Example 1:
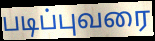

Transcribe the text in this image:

படிப்புவரை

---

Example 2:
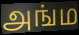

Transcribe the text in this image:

அங்ம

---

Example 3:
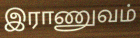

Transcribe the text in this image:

இராணுவம்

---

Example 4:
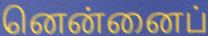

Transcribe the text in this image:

னென்னைப்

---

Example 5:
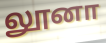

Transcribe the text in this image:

லூனா